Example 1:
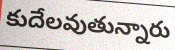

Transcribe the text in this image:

కుదేలవుతున్నారు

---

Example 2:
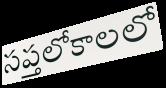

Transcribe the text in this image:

సప్తలోకాలలో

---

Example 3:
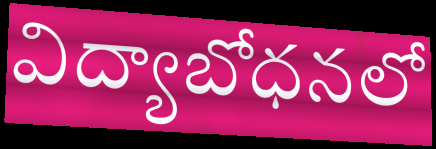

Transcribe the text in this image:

విద్యాబోధనలో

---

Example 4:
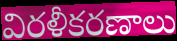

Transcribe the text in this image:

విరళీకరణాలు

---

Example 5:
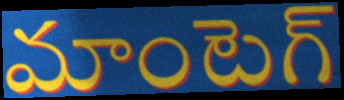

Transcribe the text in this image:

మాంటెగ్